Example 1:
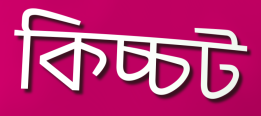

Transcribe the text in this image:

কিচ্চট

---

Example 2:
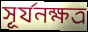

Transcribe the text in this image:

সূর্যনক্ষত্র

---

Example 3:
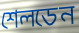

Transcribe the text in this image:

শেলডেন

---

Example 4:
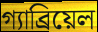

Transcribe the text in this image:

গ্যাব্রিয়েল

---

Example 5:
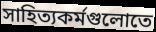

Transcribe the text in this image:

সাহিত্যকর্মগুলোতে